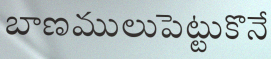
బాణములుపెట్టుకొనే